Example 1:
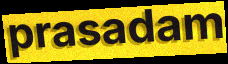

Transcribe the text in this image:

prasadam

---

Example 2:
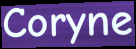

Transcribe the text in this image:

Coryne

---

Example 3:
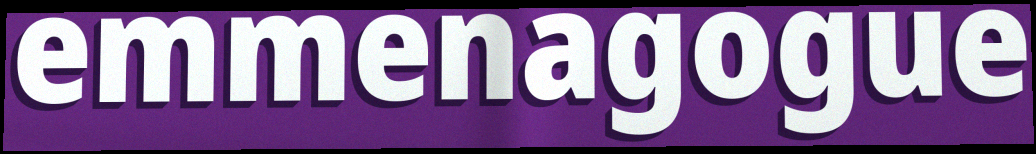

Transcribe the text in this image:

emmenagogue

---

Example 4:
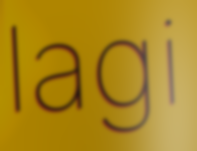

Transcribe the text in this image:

lagi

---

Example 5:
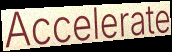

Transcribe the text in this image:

Accelerate